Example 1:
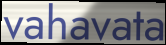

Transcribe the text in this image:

vahavata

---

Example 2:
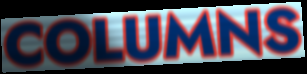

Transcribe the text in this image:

COLUMNS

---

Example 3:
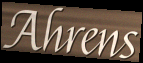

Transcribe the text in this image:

Ahrens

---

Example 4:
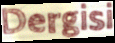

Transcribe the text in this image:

Dergisi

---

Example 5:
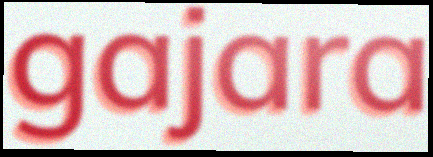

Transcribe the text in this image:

gajara